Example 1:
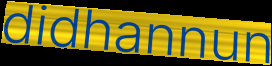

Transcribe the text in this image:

didhannun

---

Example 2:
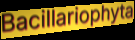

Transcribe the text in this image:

Bacillariophyta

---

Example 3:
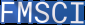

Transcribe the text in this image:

FMSCI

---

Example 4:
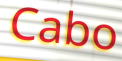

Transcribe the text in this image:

Cabo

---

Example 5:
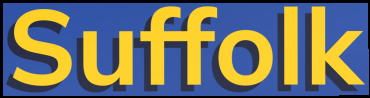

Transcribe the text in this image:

Suffolk